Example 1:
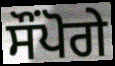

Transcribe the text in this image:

ਸੌਂਪੋਗੇ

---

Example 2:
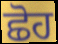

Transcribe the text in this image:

ਛੋਹ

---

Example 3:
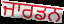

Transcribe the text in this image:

ਜਾਰਡਨ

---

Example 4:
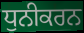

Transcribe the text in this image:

ਧੁਨੀਕਰਨ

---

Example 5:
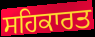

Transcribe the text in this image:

ਸਹਿਕਾਰਤ